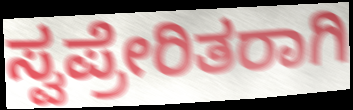
ಸ್ವಪ್ರೇರಿತರಾಗಿ